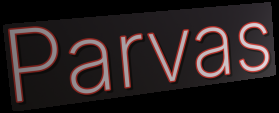
Parvas